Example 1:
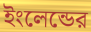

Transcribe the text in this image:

ইংলেন্ডের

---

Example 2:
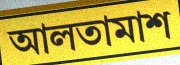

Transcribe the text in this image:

আলতামাশ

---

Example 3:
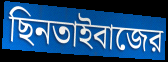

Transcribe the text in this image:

ছিনতাইবাজের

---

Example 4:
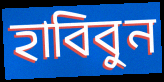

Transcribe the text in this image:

হাবিবুন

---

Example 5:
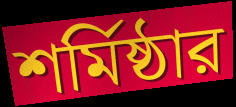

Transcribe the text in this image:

শর্মিষ্ঠার